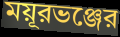
ময়ূরভঞ্জের